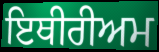
ਇਥੀਰੀਅਮ